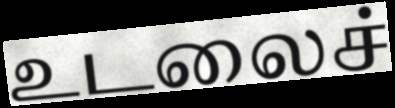
உடலைச்